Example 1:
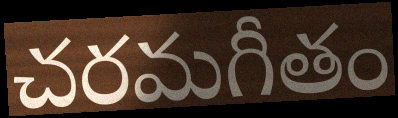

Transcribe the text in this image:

చరమగీతం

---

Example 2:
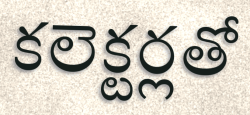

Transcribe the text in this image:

కలెక్టర్లతో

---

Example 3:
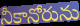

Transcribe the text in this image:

నీకానోరును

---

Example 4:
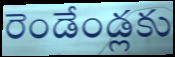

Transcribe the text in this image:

రెండేండ్లకు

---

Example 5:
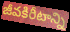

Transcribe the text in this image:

జీవకిరీటాన్ని